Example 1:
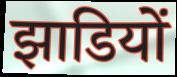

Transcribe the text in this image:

झाडियों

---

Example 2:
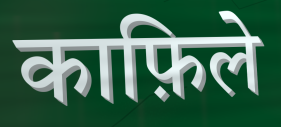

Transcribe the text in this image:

काफ़िले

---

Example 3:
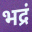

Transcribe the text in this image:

भद्रं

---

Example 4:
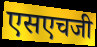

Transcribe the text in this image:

एसएचजी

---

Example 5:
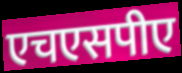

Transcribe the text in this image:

एचएसपीए